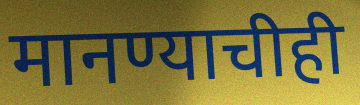
मानण्याचीही